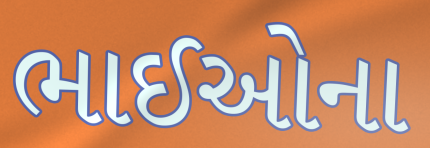
ભાઈઓના